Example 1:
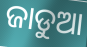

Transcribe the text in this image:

ଜାଡୁଆ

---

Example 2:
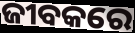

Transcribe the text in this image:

ଜୀବକରେ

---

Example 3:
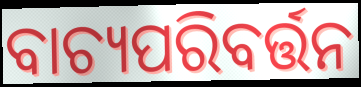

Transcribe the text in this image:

ବାଚ୍ୟପରିବର୍ତ୍ତନ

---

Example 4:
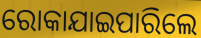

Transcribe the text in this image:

ରୋକାଯାଇପାରିଲେ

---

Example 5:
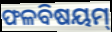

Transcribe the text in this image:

ଫଳବିଷୟମ୍